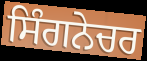
ਸਿੰਗਨੇਚਰ